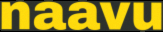
naavu